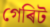
গেৰিট